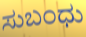
ಸುಬಂಧು